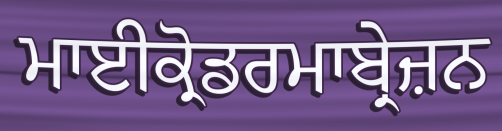
ਮਾਈਕ੍ਰੋਡਰਮਾਬ੍ਰੇਜ਼ਨ